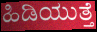
ಹಿಡಿಯುತ್ತೆ